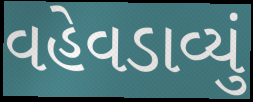
વહેવડાવ્યું